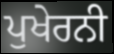
ਪੁਖੇਰਨੀ